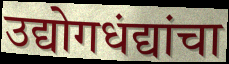
उद्योगधंद्यांचा